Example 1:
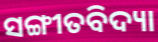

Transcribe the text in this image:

ସଙ୍ଗୀତବିଦ୍ୟା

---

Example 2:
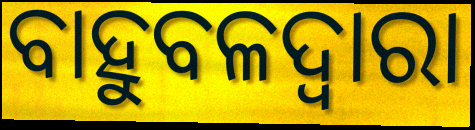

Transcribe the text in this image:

ବାହୁବଳଦ୍ୱାରା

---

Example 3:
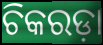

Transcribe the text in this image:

ଚିକରଡ଼ା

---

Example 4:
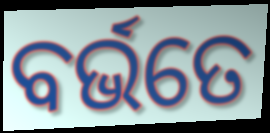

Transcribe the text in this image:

ବର୍ଭତେ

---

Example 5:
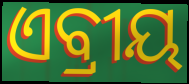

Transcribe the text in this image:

ଏବ୍ରୀୟ